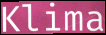
Klima